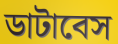
ডাটাবেস